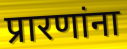
प्रारणांना